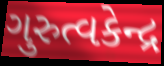
ગુરુત્વકેન્દ્ર